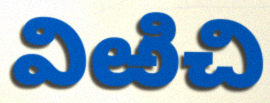
విఱిచి